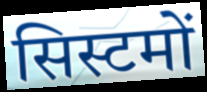
सिस्टमों